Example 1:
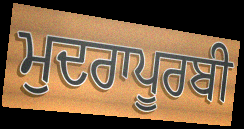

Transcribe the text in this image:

ਮੁਦਰਾਪੂਰਬੀ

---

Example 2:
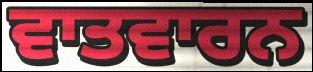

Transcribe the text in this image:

ਵਾਤਵਾਰਨ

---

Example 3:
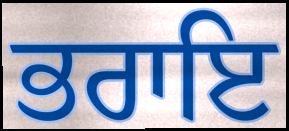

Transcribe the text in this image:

ਭਰਾਇ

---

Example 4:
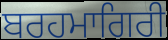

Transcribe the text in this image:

ਬਰਹਮਾਗਿਰੀ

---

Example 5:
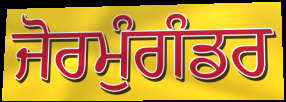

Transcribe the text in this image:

ਜੋਰਮੁੰਗੰਡਰ